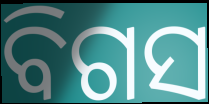
ବିଗସ